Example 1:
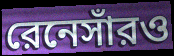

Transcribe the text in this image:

রেনেসাঁরও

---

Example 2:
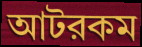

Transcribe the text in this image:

আটরকম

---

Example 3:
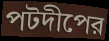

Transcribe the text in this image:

পটদীপের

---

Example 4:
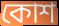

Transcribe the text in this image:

কোশ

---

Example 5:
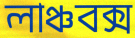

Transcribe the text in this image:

লাঞ্চবক্স